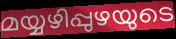
മയ്യഴിപ്പുഴയുടെ